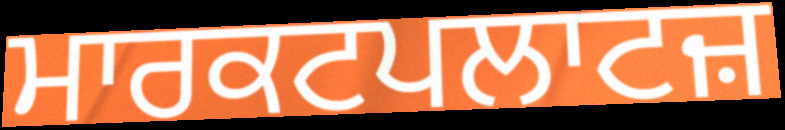
ਮਾਰਕਟਪਲਾਟਜ਼